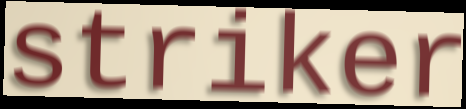
striker